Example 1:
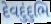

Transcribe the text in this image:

દેવદુંદુભિ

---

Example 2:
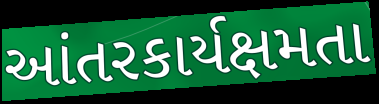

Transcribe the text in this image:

આંતરકાર્યક્ષમતા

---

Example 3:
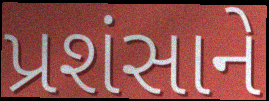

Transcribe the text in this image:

પ્રશંસાને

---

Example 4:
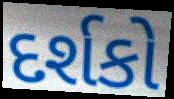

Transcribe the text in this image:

દર્શકો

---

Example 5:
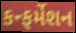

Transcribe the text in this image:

કન્ફર્મેશન